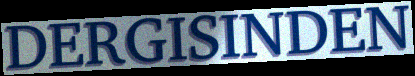
DERGISINDEN